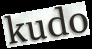
kudo